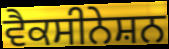
ਵੈਕਸੀਨੇਸ਼ਨ